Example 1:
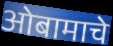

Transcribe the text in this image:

ओबामाचे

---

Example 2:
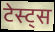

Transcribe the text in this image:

टेस्ट्स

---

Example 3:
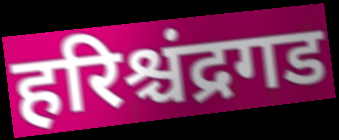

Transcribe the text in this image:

हरिश्चंद्रगड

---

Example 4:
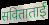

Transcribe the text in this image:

सविताताई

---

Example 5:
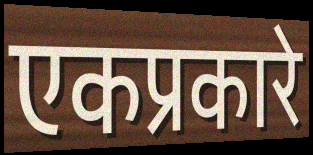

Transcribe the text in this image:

एकप्रकारे